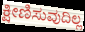
ಕ್ಷೀಣಿಸುವುದಿಲ್ಲ